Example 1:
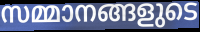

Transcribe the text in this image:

സമ്മാനങ്ങളുടെ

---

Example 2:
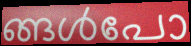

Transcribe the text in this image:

ങ്ങൾപോ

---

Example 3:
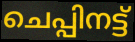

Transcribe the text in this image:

ചെപ്പിനട്ട്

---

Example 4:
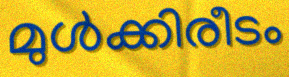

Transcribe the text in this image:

മുൾക്കിരീടം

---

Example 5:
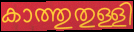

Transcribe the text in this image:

കാത്തുതുള്ളി